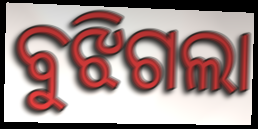
ବୁଝିଗଲା